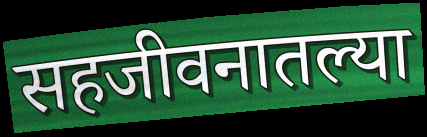
सहजीवनातल्या